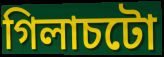
গিলাচটো